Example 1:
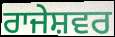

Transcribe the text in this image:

ਰਾਜੇਸ਼ਵਰ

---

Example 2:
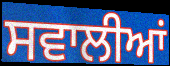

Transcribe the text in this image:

ਸਵਾਲੀਆਂ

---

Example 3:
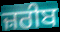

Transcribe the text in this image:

ਜ਼ਰੀਬ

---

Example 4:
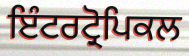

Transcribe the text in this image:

ਇੰਟਰਟ੍ਰੋਪਿਕਲ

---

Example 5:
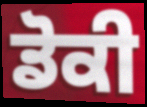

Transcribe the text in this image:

ਡੋਕੀ